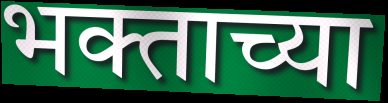
भक्ताच्या